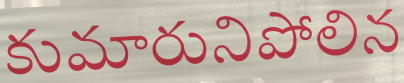
కుమారునిపోలిన